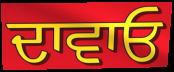
ਦਾਵਾਓ